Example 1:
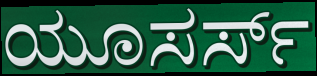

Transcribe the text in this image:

ಯೂಸರ್ಸ್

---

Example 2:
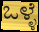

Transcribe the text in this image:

ಒಳ್ಳೆ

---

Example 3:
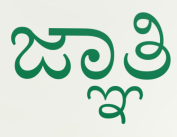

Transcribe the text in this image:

ಜ್ಞಾತಿ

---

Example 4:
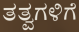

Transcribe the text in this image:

ತತ್ವಗಳಿಗೆ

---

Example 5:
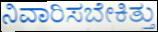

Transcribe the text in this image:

ನಿವಾರಿಸಬೇಕಿತ್ತು